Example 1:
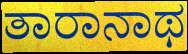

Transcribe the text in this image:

ತಾರಾನಾಥ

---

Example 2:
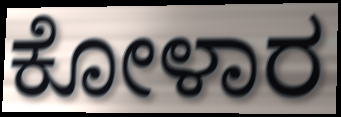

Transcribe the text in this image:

ಕೋಳಾರ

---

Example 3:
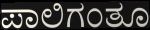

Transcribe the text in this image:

ಪಾಲಿಗಂತೂ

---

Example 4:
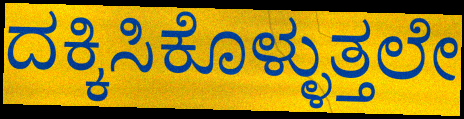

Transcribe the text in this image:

ದಕ್ಕಿಸಿಕೊಳ್ಳುತ್ತಲೇ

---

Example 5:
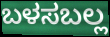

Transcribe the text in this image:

ಬಳಸಬಲ್ಲ